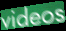
videos